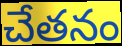
చేతనం